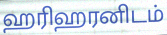
ஹரிஹரனிடம்